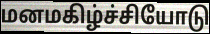
மனமகிழ்ச்சியோடு